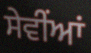
ਸੇਵੀਂਆਂ